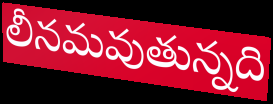
లీనమవుతున్నది